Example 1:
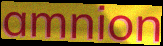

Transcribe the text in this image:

amnion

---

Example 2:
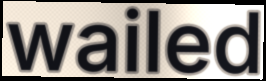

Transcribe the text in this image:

wailed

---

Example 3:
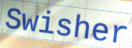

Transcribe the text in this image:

Swisher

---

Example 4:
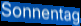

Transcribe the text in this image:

Sonnentag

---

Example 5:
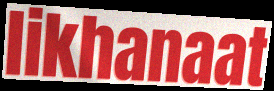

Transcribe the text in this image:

likhanaat